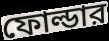
ফোল্ডার